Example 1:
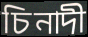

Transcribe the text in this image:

চিনাদী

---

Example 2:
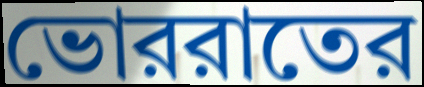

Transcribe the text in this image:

ভোররাতের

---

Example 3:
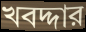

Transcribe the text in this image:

খবদ্দার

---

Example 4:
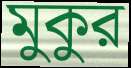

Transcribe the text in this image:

মুকুর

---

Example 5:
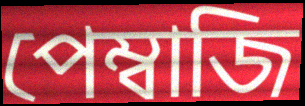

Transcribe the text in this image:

পেম্বাজি